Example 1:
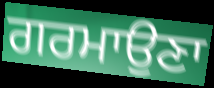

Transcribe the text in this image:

ਗਰਮਾਉਣਾ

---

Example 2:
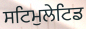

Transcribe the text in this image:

ਸਟਿਮੁਲੇਟਿਡ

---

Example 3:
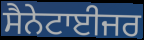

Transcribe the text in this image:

ਸੈਨੇਟਾਈਜਰ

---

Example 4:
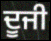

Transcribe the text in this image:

ਦੂਜੀ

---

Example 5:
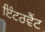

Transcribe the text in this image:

ਇੰਟਰਵੈਂਟ